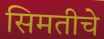
सिमतीचे